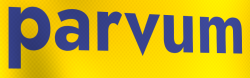
parvum